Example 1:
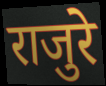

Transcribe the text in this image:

राजुरे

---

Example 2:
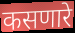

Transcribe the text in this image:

कसणारे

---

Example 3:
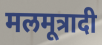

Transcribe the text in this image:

मलमूत्रादी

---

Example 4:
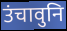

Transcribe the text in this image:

उंचावुनि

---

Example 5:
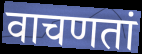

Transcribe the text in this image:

वाचणतां